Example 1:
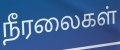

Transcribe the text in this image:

நீரலைகள்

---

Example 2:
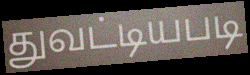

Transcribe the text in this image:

துவட்டியபடி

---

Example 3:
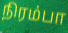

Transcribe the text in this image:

நிரம்பா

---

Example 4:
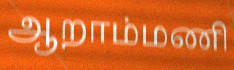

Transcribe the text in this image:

ஆறாம்மணி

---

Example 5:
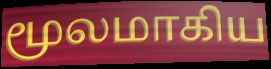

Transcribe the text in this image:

மூலமாகிய